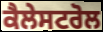
ਕੈਲੇਸਟਰੋਲ